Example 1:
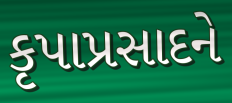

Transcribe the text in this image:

કૃપાપ્રસાદને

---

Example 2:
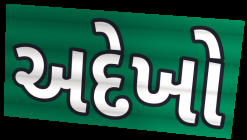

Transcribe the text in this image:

અદેખો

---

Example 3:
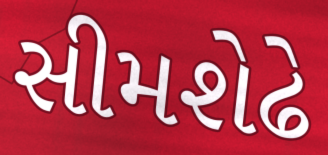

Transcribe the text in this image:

સીમશેઢે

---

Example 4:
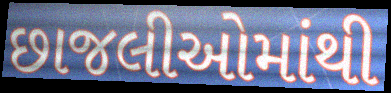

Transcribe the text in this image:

છાજલીઓમાંથી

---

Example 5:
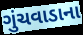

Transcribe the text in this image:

ગુંચવાડાના